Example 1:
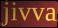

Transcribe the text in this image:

jivva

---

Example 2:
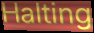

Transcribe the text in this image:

Halting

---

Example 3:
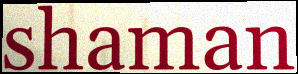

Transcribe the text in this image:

shaman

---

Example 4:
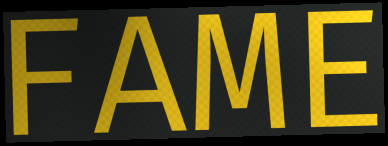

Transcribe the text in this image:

FAME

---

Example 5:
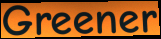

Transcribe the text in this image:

Greener